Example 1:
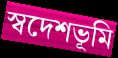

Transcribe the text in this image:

স্বদেশভূমি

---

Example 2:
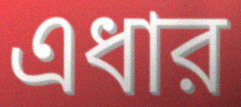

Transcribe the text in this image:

এধার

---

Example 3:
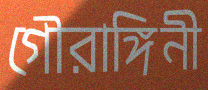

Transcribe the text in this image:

গৌরাঙ্গিনী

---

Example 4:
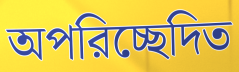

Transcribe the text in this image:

অপরিচ্ছেদিত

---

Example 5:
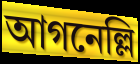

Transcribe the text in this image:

আগনেল্লি